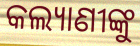
କଲ୍ୟାଣୀଙ୍କୁ